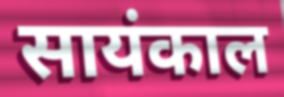
सायंकाल